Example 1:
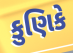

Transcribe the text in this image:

કુણિકે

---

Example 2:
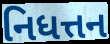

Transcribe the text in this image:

નિધત્તન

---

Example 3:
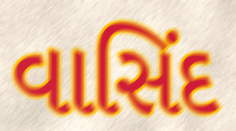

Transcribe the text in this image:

વાસિંદ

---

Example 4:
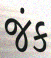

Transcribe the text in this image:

જંક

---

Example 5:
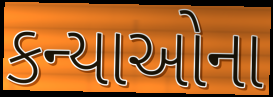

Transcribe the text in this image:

કન્યાઓના